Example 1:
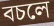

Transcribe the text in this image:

বচলে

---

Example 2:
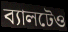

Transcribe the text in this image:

ব্যালটেও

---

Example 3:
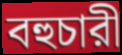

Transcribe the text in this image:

বহুচারী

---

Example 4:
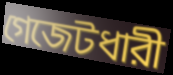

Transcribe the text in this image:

গেজেটধারী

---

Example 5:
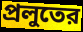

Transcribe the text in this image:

প্রলুতের